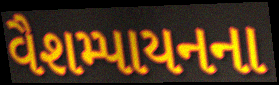
વૈશમ્પાયનના